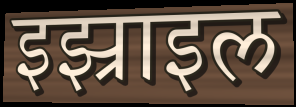
इझ्राइल